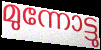
മുന്നോട്ടു